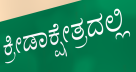
ಕ್ರೀಡಾಕ್ಷೇತ್ರದಲ್ಲಿ